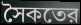
সৈকতের